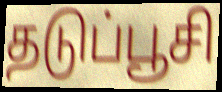
தடுப்பூசி